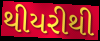
થીયરીથી